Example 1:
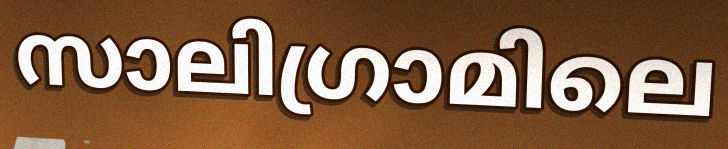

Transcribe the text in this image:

സാലിഗ്രാമിലെ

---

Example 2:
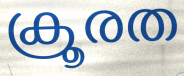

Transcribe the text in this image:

ക്രൂരത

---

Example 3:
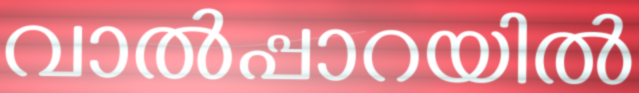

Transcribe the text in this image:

വാൽപ്പാറയിൽ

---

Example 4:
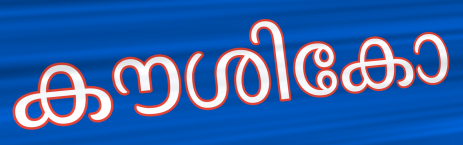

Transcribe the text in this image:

കൗശികോ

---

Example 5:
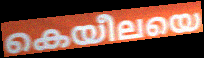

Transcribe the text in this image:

കെയീലയെ